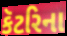
કૅટરિના